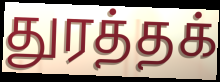
துரத்தக்